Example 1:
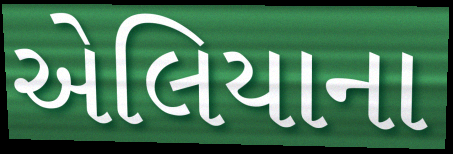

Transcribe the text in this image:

એલિયાના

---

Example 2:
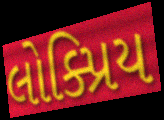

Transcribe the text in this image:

લોક્પ્રિય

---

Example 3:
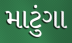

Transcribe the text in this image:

માટુંગા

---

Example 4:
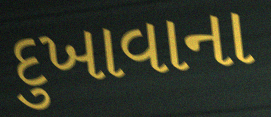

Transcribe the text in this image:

દુખાવાના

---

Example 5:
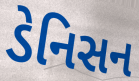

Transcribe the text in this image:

ડેનિસન